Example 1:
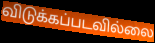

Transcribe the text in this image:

விடுக்கப்படவில்லை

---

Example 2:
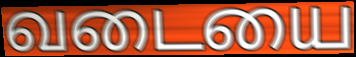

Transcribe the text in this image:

வடையை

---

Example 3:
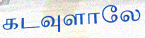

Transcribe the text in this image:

கடவுளாலே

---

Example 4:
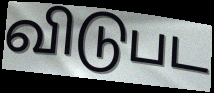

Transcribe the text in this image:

விடுபட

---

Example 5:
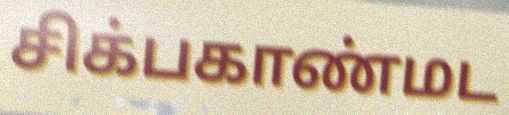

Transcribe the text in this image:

சிக்பகாண்மட